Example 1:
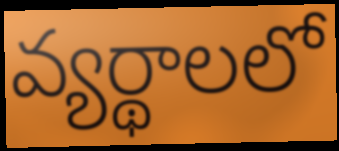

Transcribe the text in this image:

వ్యర్థాలలో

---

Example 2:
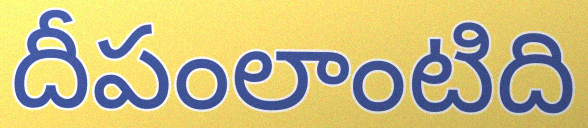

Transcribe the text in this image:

దీపంలాంటిది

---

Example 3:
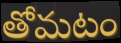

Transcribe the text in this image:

తోమటం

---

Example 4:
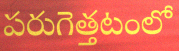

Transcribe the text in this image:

పరుగెత్తటంలో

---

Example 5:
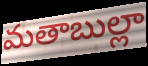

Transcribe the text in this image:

మతాబుల్లా